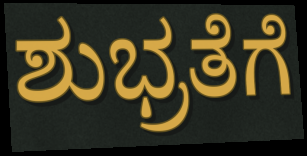
ಶುಭ್ರತೆಗೆ